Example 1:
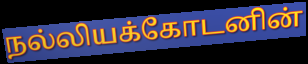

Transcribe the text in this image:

நல்லியக்கோடனின்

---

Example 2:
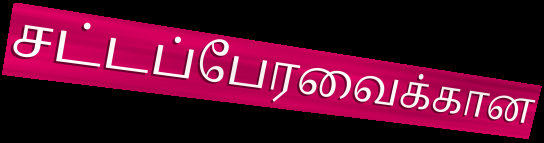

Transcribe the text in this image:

சட்டப்பேரவைக்கான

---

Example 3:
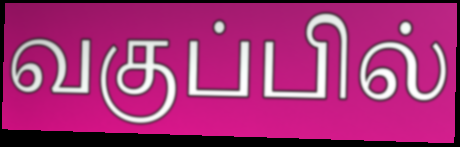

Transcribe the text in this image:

வகுப்பில்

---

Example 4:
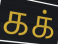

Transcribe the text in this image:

கக்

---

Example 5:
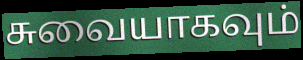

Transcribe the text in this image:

சுவையாகவும்